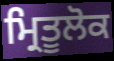
ਮ੍ਰਿਤੂਲੋਕ